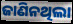
ଜାଣିନଥିଲା